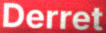
Derret